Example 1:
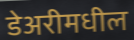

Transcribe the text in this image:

डेअरीमधील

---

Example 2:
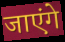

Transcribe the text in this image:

जाएंगे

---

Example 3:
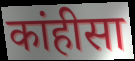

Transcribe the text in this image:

कांहीसा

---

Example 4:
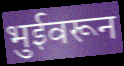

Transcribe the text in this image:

भुईवरून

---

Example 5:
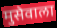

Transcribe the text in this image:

मुसेवाला